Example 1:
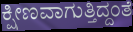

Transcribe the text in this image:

ಕ್ಷೀಣವಾಗುತ್ತಿದ್ದಂತೆ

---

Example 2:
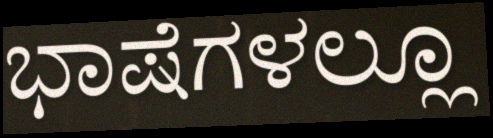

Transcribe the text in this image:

ಭಾಷೆಗಳಲ್ಲೂ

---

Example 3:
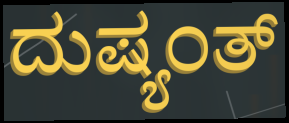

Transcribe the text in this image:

ದುಷ್ಯಂತ್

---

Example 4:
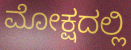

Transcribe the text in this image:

ಮೋಕ್ಷದಲ್ಲಿ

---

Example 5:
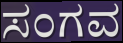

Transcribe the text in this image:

ಸಂಗವ